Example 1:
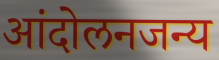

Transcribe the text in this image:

आंदोलनजन्य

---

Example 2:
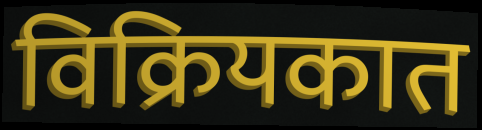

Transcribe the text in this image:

विक्रियकात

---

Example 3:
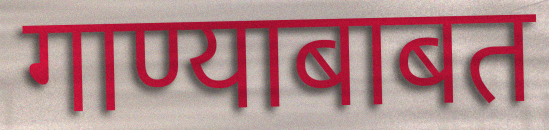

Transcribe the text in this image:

गाण्याबाबत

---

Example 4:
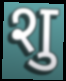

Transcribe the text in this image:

शु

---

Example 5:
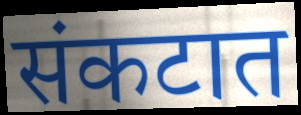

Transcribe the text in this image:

संकटात